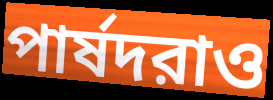
পার্ষদরাও